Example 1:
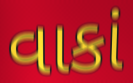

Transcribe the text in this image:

વાકાં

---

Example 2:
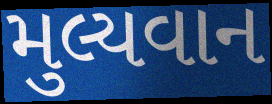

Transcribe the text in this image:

મુલ્યવાન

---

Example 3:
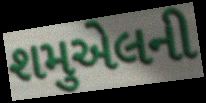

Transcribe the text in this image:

શમુએલની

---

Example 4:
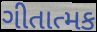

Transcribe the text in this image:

ગીતાત્મક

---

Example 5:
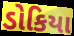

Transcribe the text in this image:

ડોકિયા